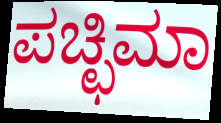
ಪಚ್ಛಿಮಾ